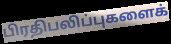
பிரதிபலிப்புகளைக்